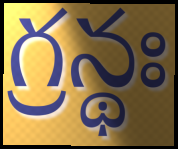
గ్రన్థః